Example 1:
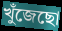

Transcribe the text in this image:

খুঁজেছো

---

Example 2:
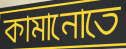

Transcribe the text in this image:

কামানোতে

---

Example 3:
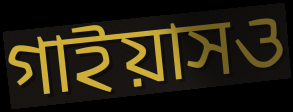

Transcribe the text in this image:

গাইয়াসও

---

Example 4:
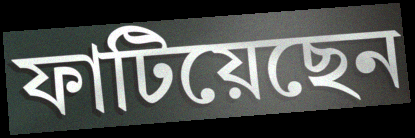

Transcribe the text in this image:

ফাটিয়েছেন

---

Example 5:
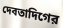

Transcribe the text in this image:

দেবতাদিগের